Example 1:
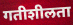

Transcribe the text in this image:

गतीशीलता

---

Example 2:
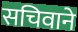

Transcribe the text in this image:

सचिवाने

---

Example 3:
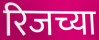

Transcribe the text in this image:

रिजच्या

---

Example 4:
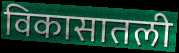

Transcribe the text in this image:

विकासातली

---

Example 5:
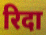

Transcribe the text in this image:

रिदा